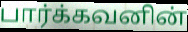
பார்க்கவனின்